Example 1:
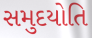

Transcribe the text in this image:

સમુદયોતિ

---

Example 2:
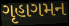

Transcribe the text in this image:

ગૃહાગમન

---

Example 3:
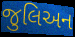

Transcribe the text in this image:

જુલિઅન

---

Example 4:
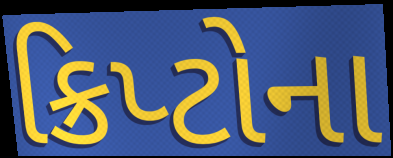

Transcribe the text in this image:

ક્રિપ્ટોના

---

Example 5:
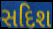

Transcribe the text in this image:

સદિશ